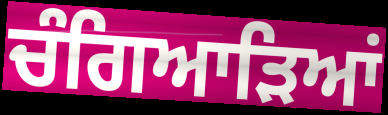
ਚੰਗਿਆੜਿਆਂ